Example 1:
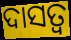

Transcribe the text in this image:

ଦାସତ୍ୱ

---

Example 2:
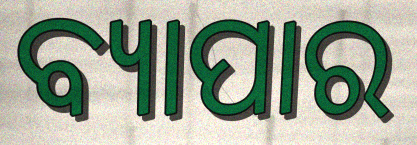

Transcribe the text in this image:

ବ୍ୟାପାର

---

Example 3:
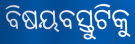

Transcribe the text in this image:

ବିଷୟବସ୍ତୁଟିକୁ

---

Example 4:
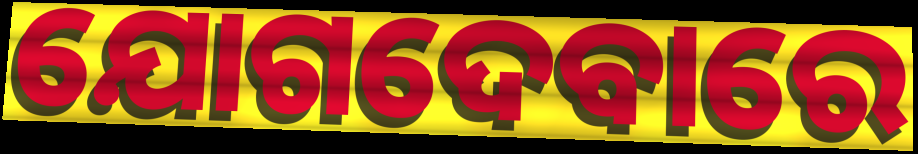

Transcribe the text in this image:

ଯୋଗଦେବାରେ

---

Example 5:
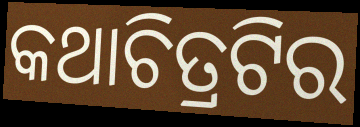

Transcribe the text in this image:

କଥାଚିତ୍ରଟିର